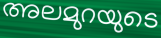
അലമുറയുടെ